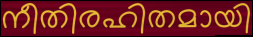
നീതിരഹിതമായി